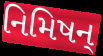
નિમિષન્